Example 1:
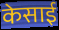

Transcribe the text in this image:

केसाई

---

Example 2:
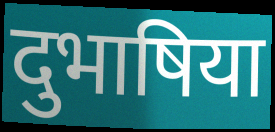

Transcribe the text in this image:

दुभाषिया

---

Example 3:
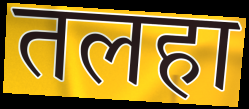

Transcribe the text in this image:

तलहा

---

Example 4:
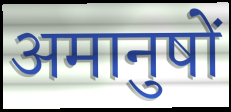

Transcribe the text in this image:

अमानुषों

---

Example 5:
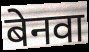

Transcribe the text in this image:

बेनवा